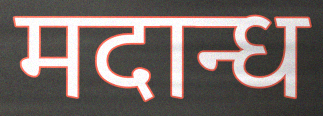
मदान्ध